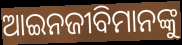
ଆଇନଜୀବିମାନଙ୍କୁ